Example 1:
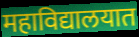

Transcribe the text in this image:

महाविद्यालयात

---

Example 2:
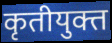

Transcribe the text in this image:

कृतीयुक्त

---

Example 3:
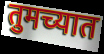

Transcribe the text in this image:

तुमच्यात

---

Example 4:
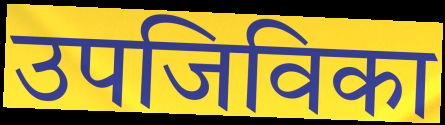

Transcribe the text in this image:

उपजिविका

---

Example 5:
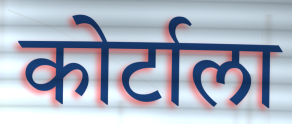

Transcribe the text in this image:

कोर्टाला